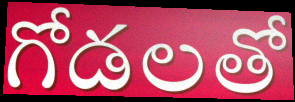
గోడలతో